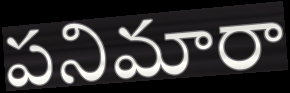
పనిమారా